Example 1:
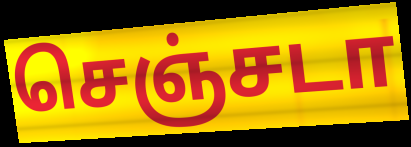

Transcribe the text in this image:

செஞ்சடா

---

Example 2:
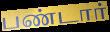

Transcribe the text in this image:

பண்டார்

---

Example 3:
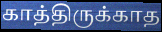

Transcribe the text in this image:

காத்திருக்காத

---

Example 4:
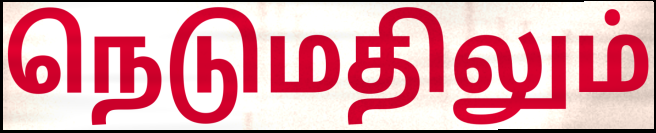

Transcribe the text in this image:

நெடுமதிலும்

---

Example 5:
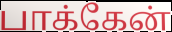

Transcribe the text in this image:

பாக்கேன்